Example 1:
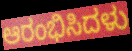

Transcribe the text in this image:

ಆರಂಭಿಸಿದಳು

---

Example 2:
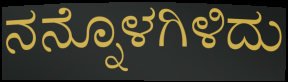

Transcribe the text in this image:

ನನ್ನೊಳಗಿಳಿದು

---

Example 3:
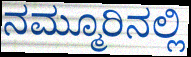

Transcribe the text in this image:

ನಮ್ಮೂರಿನಲ್ಲಿ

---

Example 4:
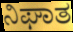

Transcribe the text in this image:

ನಿಘಾತ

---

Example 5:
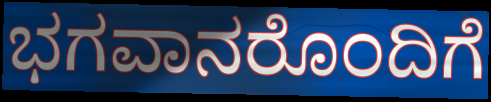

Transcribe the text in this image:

ಭಗವಾನರೊಂದಿಗೆ